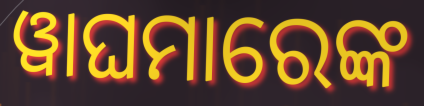
ୱାଘମାରେଙ୍କ